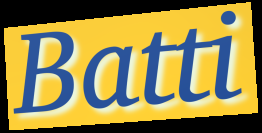
Batti